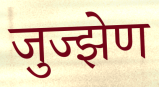
जुज्झेण